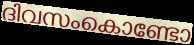
ദിവസംകൊണ്ടോ